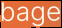
bage